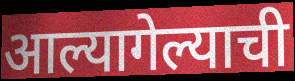
आल्यागेल्याची